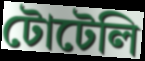
টোটেলি